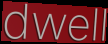
dwell